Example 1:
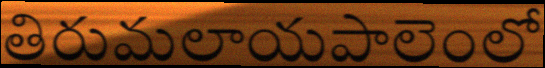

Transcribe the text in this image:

తిరుమలాయపాలెంలో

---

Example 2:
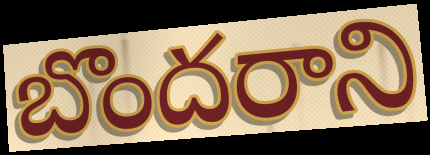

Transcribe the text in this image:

బొందరాని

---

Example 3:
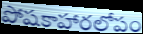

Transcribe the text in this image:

పోషకాహారలోపం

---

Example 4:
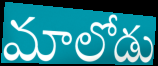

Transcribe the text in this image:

మాలోడు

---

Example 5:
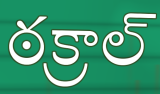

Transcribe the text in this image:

ఠక్రాల్